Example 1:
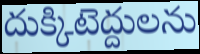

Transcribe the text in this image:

దుక్కిటెద్దులను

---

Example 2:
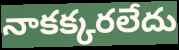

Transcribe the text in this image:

నాకక్కరలేదు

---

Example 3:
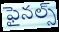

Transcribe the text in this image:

ఫైనల్స్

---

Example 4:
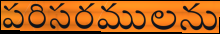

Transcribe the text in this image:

పరిసరములను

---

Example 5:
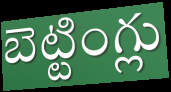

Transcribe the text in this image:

బెట్టింగ్లు